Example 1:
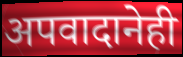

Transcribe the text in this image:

अपवादानेही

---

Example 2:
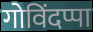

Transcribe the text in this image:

गोविंदप्पा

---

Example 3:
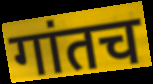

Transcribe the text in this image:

गांतच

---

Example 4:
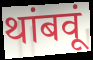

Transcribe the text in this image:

थांबवूं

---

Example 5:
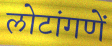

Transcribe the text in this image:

लोटांगणें